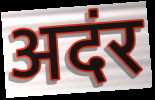
अदंर